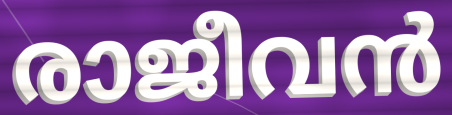
രാജീവൻ